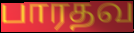
பாரதவ